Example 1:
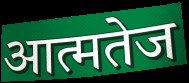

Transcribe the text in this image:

आत्मतेज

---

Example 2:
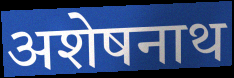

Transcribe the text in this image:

अशेषनाथ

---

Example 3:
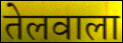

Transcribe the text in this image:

तेलवाला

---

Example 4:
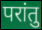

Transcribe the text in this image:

परांतु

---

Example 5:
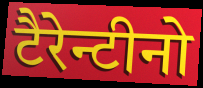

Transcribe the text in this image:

टैरेन्टीनो